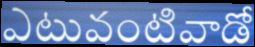
ఎటువంటివాడో